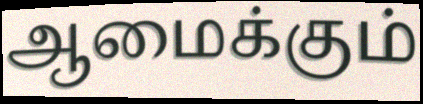
ஆமைக்கும்